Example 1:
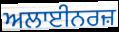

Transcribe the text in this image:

ਅਲਾਈਨਰਜ਼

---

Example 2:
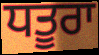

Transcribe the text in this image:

ਧਤੂਰਾ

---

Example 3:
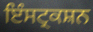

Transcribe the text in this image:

ਇੰਸਟ੍ਰਕਸ਼ਨ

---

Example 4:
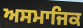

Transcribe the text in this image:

ਅਸਮਾਜਿਕ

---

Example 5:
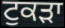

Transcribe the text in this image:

ਟੁਕੜਾ